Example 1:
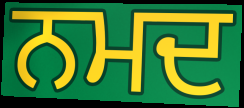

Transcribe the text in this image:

ਨਮਦ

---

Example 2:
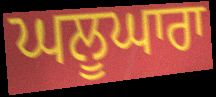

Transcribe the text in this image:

ਘਲੂਘਾਰਾ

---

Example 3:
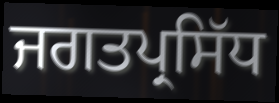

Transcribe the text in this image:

ਜਗਤਪ੍ਰਸਿੱਧ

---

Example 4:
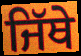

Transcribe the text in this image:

ਜਿੱਥੇ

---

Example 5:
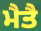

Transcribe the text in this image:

ਮੈਤੈ